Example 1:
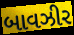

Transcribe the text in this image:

બાવઝીર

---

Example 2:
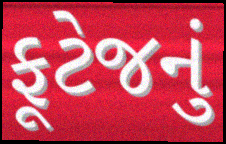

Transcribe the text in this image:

ફૂટેજનું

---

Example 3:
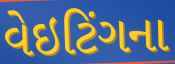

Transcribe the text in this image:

વેઇટિંગના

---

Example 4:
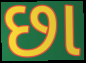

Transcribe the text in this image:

છા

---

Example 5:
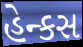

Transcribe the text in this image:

હેન્કસ